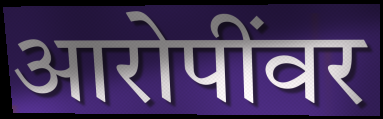
आरोपींवर